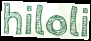
hiloli